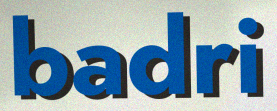
badri